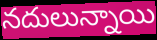
నదులున్నాయి